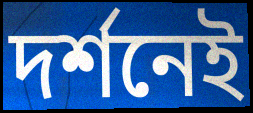
দর্শনেই